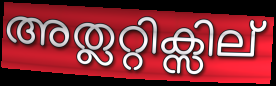
അത്ലറ്റിക്സില്